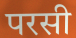
परसी